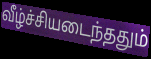
வீழ்ச்சியடைந்ததும்